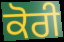
ਕੋਰੀ